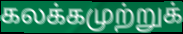
கலக்கமுற்றுக்